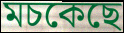
মচকেছে